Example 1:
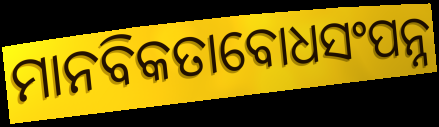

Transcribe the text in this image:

ମାନବିକତାବୋଧସଂପନ୍ନ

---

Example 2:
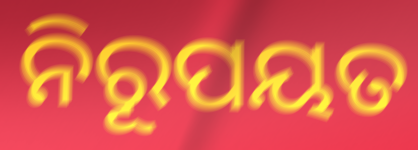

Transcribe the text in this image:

ନିରୂପୟତ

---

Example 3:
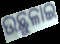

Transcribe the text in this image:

ଉଛୁଳାଇ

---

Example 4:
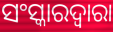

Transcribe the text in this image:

ସଂସ୍କାରଦ୍ୱାରା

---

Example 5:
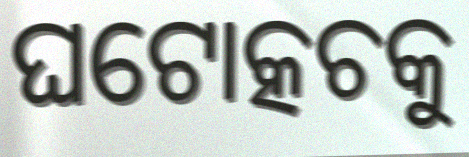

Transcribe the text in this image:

ଘଟୋତ୍କଚକୁ